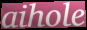
aihole